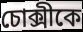
চোক্সীকে